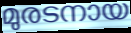
മുരടനായ